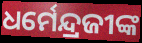
ଧର୍ମେନ୍ଦ୍ରଜୀଙ୍କ